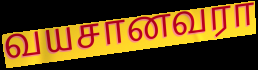
வயசானவரா